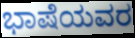
ಭಾಷೆಯವರ